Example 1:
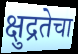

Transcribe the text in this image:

क्षुद्रतेचा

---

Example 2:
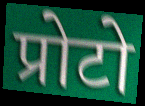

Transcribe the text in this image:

प्रोटो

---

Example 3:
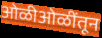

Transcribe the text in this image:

ओळीओळींतून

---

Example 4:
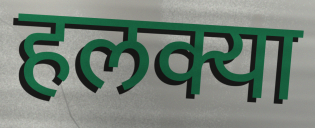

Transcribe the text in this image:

हलक्या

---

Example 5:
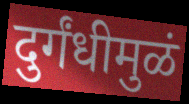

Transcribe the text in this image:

दुर्गंधीमुळं